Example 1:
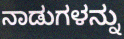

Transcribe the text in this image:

ನಾಡುಗಳನ್ನು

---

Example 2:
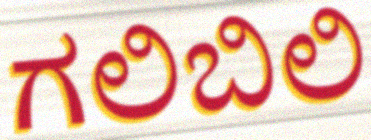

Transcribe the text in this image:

ಗಲಿಬಿಲಿ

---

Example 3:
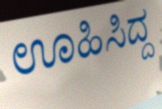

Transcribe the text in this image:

ಊಹಿಸಿದ್ದ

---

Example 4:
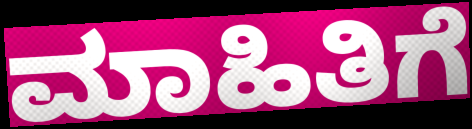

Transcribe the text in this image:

ಮಾಹಿತಿಗೆ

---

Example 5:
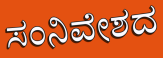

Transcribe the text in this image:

ಸಂನಿವೇಶದ